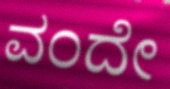
ವಂದೇ